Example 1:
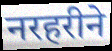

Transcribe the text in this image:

नरहरीने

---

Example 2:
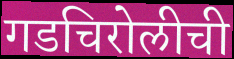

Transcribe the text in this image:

गडचिरोलीची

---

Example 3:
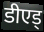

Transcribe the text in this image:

डीएड्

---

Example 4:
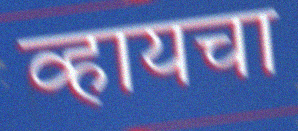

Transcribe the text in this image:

व्हायचा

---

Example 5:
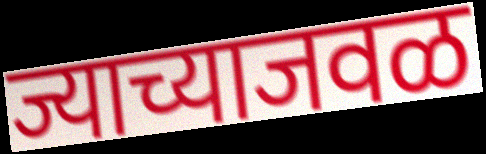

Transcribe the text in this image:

ज्याच्याजवळ